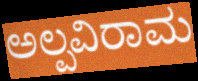
ಅಲ್ಪವಿರಾಮ